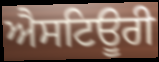
ਐਸਟਿਊਰੀ